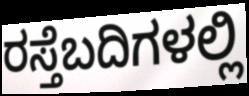
ರಸ್ತೆಬದಿಗಳಲ್ಲಿ